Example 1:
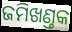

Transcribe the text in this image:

ଜମିଖଣ୍ତକ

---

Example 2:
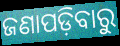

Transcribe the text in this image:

ଜଣାପଡ଼ିବାରୁ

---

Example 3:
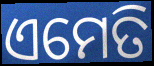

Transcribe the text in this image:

ଏମେତି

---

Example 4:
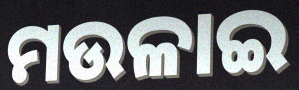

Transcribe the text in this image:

ମଉଳାଇ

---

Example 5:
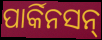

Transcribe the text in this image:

ପାର୍କିନସନ୍